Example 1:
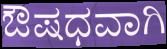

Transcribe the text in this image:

ಔಷಧವಾಗಿ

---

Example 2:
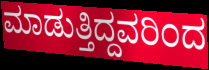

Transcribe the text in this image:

ಮಾಡುತ್ತಿದ್ದವರಿಂದ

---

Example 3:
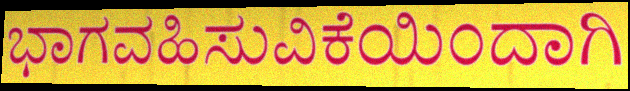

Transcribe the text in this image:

ಭಾಗವಹಿಸುವಿಕೆಯಿಂದಾಗಿ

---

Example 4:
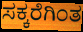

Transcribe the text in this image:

ಸಕ್ಕರೆಗಿಂತ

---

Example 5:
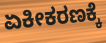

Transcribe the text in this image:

ಏಕೀಕರಣಕ್ಕೆ